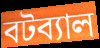
বটব্যাল